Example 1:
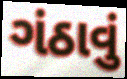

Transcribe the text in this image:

ગંઠાવું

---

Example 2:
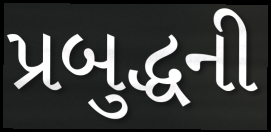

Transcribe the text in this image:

પ્રબુદ્ધની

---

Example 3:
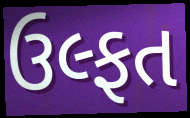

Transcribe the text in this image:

ઉલ્ફત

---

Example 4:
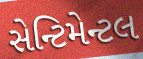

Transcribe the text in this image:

સેન્ટિમેન્ટલ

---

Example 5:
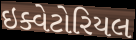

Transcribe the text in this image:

ઇક્વેટોરિયલ